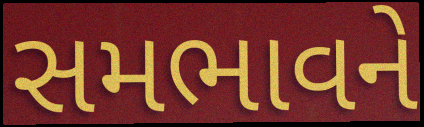
સમભાવને